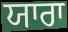
ਯਾਰਾ